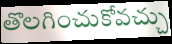
తొలగించుకోవచ్చు